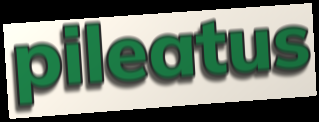
pileatus